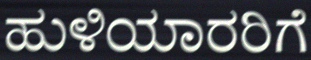
ಹುಳಿಯಾರರಿಗೆ